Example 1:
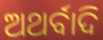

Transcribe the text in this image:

ଅଥର୍ବାଦି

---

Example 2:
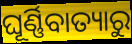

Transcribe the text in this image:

ଘୂର୍ଣ୍ଣିବାତ୍ୟାରୁ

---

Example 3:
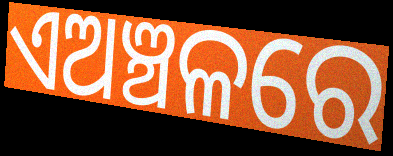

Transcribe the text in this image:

ଏଅଞ୍ଚଳରେ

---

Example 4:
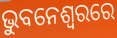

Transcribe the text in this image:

ଭୁବନେଶ୍ବରରେ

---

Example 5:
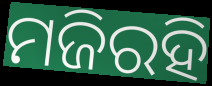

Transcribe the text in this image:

ମଜିରହି